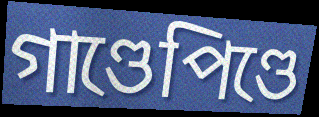
গাণ্ডেপিণ্ডে